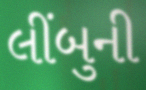
લીંબુની